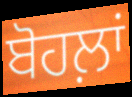
ਬੋਹਲ਼ਾਂ